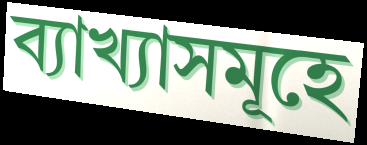
ব্যাখ্যাসমূহে